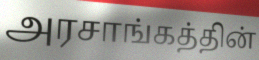
அரசாங்கத்தின்